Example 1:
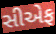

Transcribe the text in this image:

સીએફ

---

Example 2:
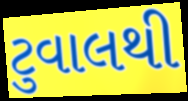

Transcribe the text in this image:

ટુવાલથી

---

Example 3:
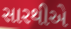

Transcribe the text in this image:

સારથીએ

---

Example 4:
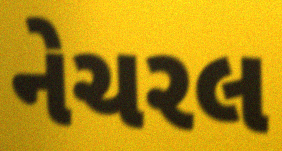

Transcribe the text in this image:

નેચરલ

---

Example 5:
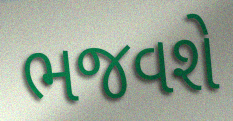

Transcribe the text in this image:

ભજવશે